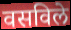
वसविले